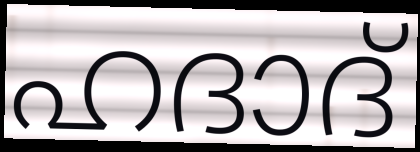
ഹദാദ്